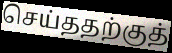
செய்ததற்குத்